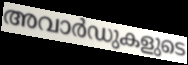
അവാർഡുകളുടെ